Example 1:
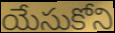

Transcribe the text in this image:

యేసుకోని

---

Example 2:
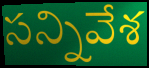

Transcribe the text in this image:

సన్నివేశ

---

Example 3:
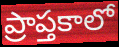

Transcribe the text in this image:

ప్రాప్తకాలో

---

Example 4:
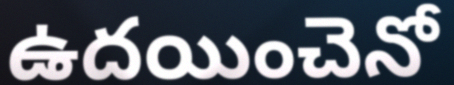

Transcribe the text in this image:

ఉదయించెనో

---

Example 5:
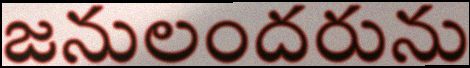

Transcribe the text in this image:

జనులందరును